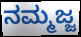
ನಮ್ಮಜ್ಜ